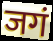
जगं